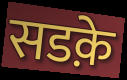
सडक़े